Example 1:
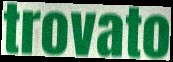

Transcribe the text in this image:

trovato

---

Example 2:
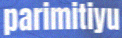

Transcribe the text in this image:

parimitiyu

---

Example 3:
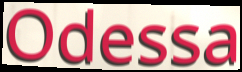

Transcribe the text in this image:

Odessa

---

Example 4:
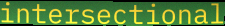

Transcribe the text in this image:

intersectional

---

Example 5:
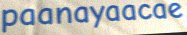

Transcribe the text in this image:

paanayaacae